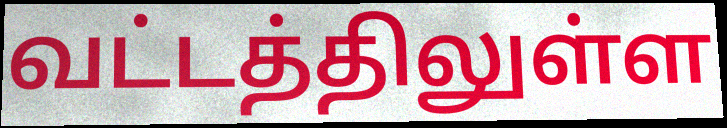
வட்டத்திலுள்ள